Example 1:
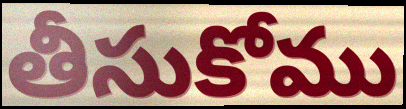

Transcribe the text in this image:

తీసుకోము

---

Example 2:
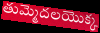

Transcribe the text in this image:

తుమ్మెదలయొక్క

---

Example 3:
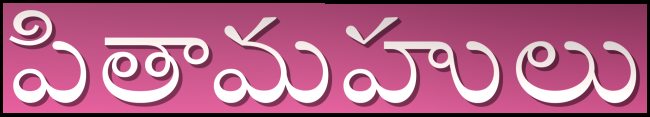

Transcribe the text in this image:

పితామహులు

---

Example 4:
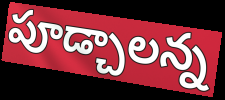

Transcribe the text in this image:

పూడ్చాలన్న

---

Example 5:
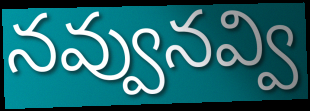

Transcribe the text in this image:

నవ్వునవ్వి